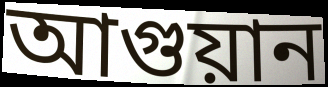
আগুয়ান